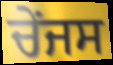
ਚੇਂਜਸ